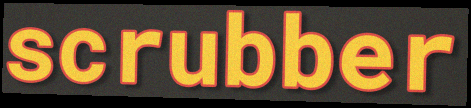
scrubber